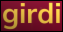
girdi